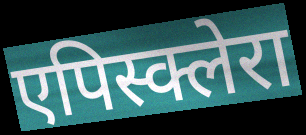
एपिस्क्लेरा